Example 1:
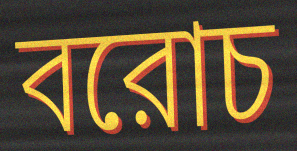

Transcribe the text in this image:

বরোচ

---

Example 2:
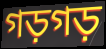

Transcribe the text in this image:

গড়গড়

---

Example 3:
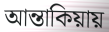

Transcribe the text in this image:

আন্তাকিয়ায়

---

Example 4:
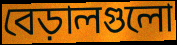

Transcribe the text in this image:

বেড়ালগুলো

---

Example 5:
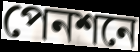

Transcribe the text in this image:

পেনশনে